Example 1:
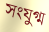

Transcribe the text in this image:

সংযুগ্ম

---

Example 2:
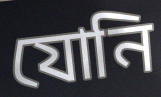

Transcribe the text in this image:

যোনি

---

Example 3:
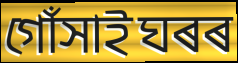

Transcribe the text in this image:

গোঁসাইঘৰৰ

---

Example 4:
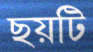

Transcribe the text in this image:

ছয়টি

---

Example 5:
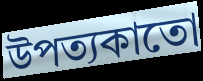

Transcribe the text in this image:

উপত্যকাতো